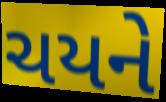
ચયને